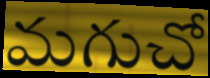
మగుచో